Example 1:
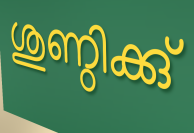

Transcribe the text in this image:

ശുണ്ഠിക്കു്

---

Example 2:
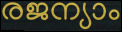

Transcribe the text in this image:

രജന്യാം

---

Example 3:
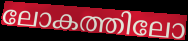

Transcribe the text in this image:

ലോകത്തിലോ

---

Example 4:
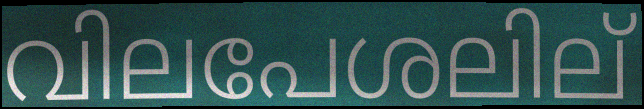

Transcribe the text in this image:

വിലപേശലില്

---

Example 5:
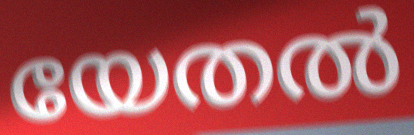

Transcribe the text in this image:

യേതൽ